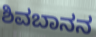
ಶಿವಬಾನನ